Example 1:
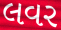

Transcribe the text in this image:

લવર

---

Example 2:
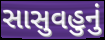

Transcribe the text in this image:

સાસુવહુનું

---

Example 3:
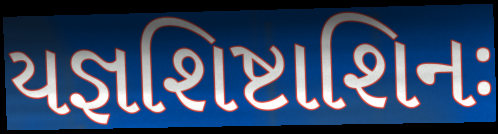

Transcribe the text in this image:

યજ્ઞશિષ્ટાશિનઃ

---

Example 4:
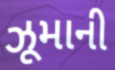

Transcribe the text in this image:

ઝૂમાની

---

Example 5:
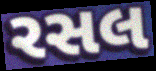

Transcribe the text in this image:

રસલ